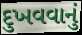
દુખવવાનું